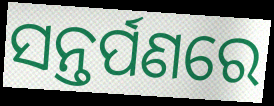
ସନ୍ତର୍ପଣରେ